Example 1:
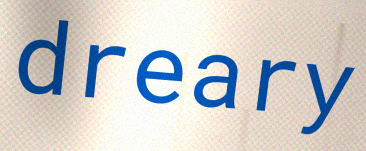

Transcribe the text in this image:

dreary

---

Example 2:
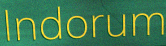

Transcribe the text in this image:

Indorum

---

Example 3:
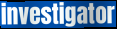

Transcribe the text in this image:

investigator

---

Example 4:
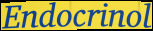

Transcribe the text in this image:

Endocrinol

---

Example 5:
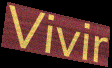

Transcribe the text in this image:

Vivir